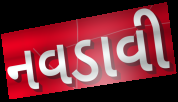
નવડાવી